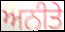
ਅਨੀਤੇ